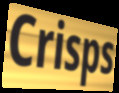
Crisps